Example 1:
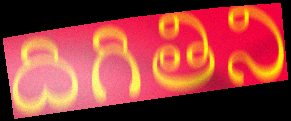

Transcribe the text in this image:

దిగితిని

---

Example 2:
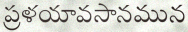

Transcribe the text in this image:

ప్రళయావసానమున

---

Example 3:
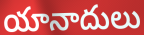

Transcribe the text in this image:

యానాదులు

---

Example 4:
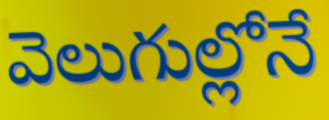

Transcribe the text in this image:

వెలుగుల్లోనే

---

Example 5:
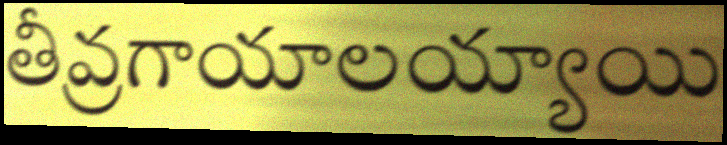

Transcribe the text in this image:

తీవ్రగాయాలయ్యాయి